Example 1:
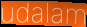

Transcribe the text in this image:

udalam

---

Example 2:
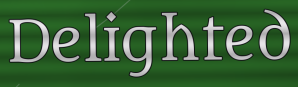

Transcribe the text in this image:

Delighted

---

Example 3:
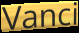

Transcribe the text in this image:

Vanci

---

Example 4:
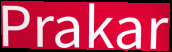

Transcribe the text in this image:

Prakar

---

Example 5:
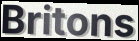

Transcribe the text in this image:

Britons